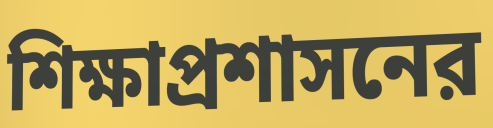
শিক্ষাপ্রশাসনের